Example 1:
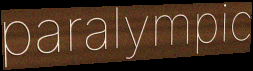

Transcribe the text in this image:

paralympic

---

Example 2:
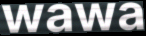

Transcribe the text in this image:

wawa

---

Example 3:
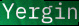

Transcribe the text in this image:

Yergin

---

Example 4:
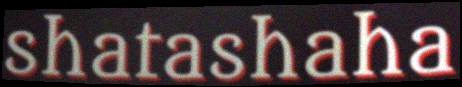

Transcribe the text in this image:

shatashaha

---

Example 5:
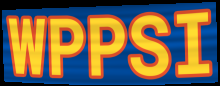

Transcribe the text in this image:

WPPSI